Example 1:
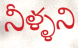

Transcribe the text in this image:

నీళ్ళని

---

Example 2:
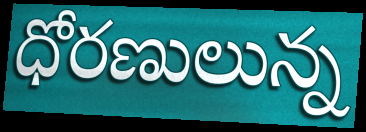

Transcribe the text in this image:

ధోరణులున్న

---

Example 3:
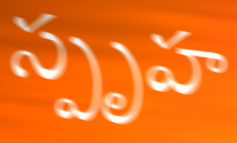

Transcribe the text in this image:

స్పృహ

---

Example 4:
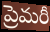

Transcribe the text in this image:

ప్రెమరీ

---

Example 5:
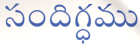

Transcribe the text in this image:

సందిగ్ధము